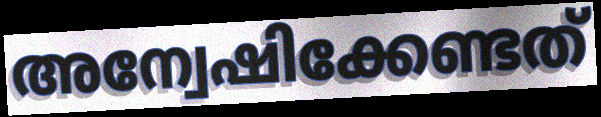
അന്വേഷിക്കേണ്ടത്